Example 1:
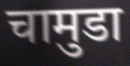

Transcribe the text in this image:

चामुडा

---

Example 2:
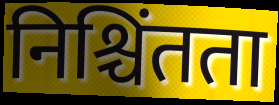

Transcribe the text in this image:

निश्चिंतता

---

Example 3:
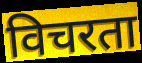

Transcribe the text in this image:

विचरता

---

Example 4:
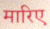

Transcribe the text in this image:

मारिए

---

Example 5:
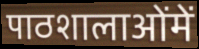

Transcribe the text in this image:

पाठशालाओंमें